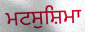
ਮਟਸੁਸ਼ਿਮਾ